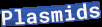
Plasmids